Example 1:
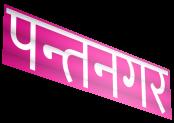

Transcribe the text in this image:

पन्तनगर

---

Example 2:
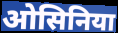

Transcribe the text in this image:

ओसिनिया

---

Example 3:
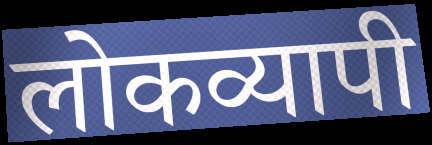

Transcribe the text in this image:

लोकव्यापी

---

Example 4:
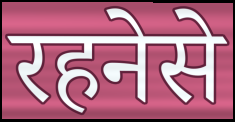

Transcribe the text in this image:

रहनेसे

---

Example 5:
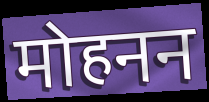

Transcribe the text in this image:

मोहनन